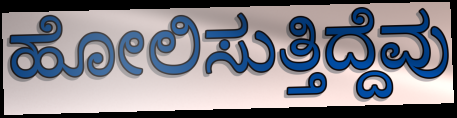
ಹೋಲಿಸುತ್ತಿದ್ದೆವು